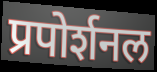
प्रपोर्शनल